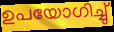
ഉപയോഗിച്ചു്